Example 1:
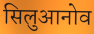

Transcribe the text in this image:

सिलुआनोव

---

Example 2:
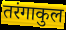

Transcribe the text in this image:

तरंगाकुल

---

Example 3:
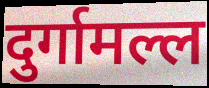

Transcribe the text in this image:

दुर्गामल्ल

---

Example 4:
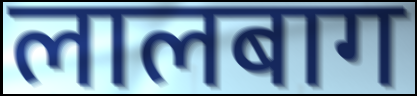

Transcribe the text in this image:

लालबाग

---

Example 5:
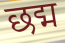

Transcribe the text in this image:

छद्म